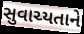
સુવાચ્યતાને